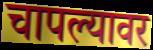
चापल्यावर